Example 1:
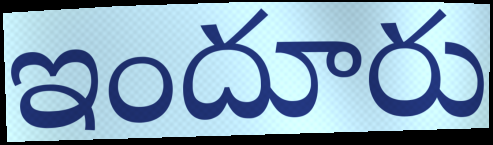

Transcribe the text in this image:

ఇందూరు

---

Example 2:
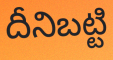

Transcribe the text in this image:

దీనిబట్టి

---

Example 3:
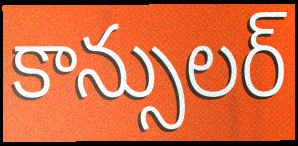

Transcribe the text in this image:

కాన్సులర్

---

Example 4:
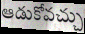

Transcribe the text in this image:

ఆడుకోవచ్చు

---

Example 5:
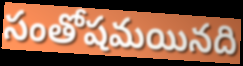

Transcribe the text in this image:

సంతోషమయినది